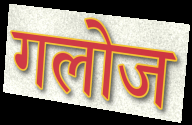
गलोज